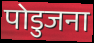
पोडुजना